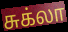
சுக்லா